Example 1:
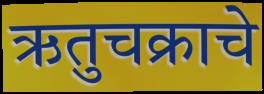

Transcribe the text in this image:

ऋतुचक्राचे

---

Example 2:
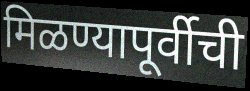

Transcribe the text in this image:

मिळण्यापूर्वीची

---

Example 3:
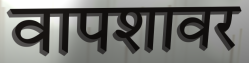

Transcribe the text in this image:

वापशावर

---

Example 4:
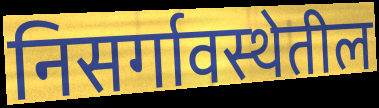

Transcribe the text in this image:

निसर्गावस्थेतील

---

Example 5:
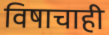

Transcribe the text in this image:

विषाचाही